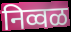
निव्‍वळ